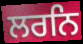
ਲਰਨਿ